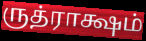
ருத்ராக்ஷம்